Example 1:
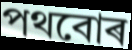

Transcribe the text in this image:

পথবোৰ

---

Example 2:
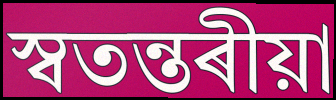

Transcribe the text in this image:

স্বতন্তৰীয়া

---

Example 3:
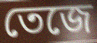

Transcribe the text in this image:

তেজে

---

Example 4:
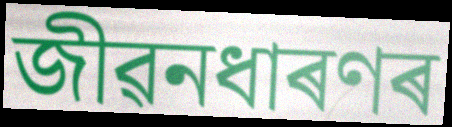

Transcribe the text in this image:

জীৱনধাৰণৰ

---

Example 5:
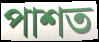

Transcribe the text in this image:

পাশত